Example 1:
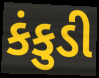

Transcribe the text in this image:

કંકુડી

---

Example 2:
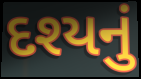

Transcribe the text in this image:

દશ્યનું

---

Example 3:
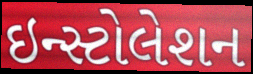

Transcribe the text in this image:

ઇન્સ્ટોલેશન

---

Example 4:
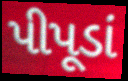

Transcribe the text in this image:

પીપૂડાં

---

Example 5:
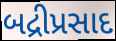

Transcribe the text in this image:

બદ્રીપ્રસાદ